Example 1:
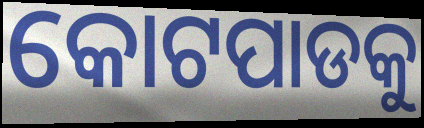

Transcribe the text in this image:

କୋଟପାଡକୁ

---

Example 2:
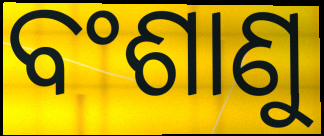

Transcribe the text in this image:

ବଂଶାଣୁ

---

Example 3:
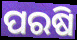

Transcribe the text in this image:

ପରଷି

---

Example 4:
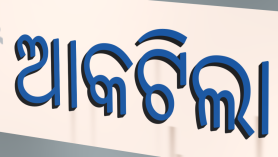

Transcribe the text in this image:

ଆକଟିଲା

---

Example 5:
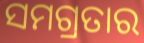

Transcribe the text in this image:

ସମଗ୍ରତାର